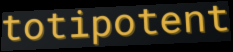
totipotent